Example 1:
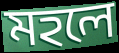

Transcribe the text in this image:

মহলে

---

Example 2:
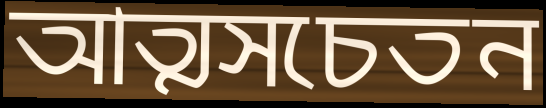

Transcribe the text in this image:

আত্মসচেতন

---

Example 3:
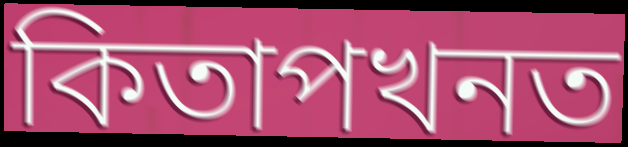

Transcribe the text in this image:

কিতাপখনত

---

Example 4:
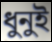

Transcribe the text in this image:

ধুনুই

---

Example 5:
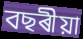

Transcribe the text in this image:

বছৰীয়া